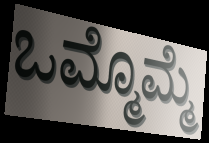
ಒಮ್ಮೊಮ್ಮೆ